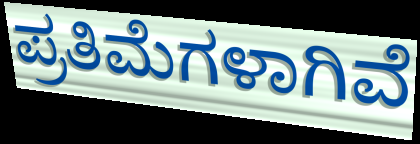
ಪ್ರತಿಮೆಗಳಾಗಿವೆ